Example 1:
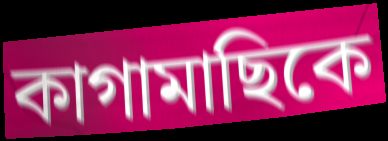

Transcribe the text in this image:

কাগামাছিকে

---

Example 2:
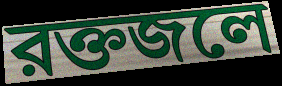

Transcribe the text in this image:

রক্তজলে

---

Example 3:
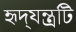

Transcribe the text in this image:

হৃদ্‌যন্ত্রটি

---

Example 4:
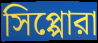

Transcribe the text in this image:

সিপ্পোরা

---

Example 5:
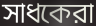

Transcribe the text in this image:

সাধকেরা